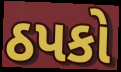
ઠપકો